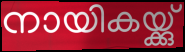
നായികയ്ക്കു്